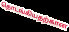
தொடங்கியதற்கான